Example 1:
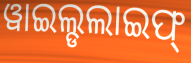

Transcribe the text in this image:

ୱାଇଲ୍ଡଲାଇଫ୍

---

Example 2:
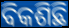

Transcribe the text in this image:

ବିକଶିଛି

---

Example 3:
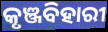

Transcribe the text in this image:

କୃଞ୍ଜବିହାରୀ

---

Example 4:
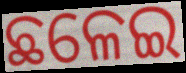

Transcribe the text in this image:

ଛଳେଇ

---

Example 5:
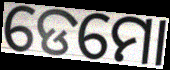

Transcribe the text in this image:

ଡେମୋ